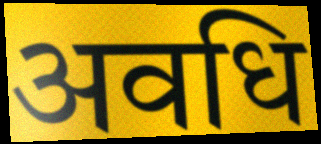
अवधि